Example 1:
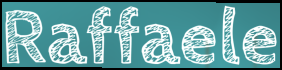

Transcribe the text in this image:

Raffaele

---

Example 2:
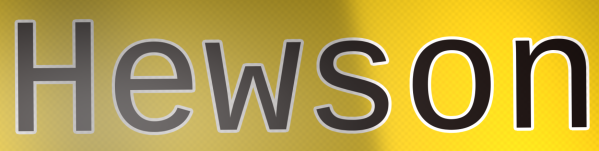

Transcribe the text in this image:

Hewson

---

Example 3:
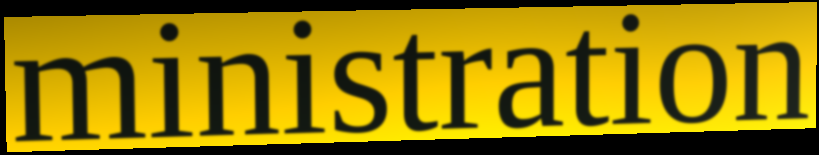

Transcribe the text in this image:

ministration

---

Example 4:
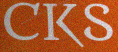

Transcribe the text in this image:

CKS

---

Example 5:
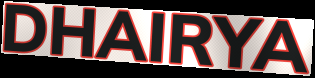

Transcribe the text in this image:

DHAIRYA